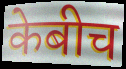
केबीच